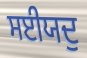
ਸਈਯਦੁ